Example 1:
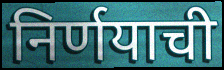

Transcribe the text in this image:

निर्णयाची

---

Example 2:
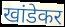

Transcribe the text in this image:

खांडेकर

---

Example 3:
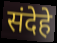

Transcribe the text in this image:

संदेहे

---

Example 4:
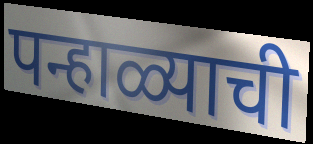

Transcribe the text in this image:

पन्हाळ्याची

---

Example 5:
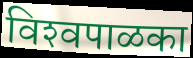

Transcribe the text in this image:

विश्वपाळका